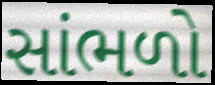
સાંભળો